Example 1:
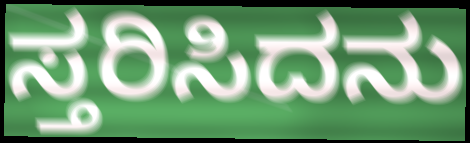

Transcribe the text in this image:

ಸ್ತರಿಸಿದನು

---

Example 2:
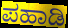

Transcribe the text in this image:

ಪಹಾಡಿ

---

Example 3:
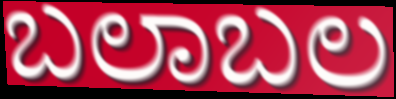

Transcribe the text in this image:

ಬಲಾಬಲ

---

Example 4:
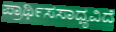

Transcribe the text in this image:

ಪ್ರಾರ್ಥಿಸಸಾಧ್ಯವಿದೆ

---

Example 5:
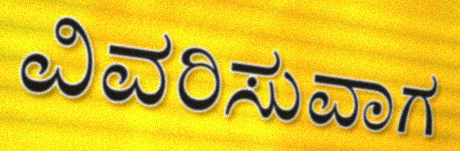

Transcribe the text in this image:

ವಿವರಿಸುವಾಗ